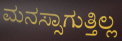
ಮನಸ್ಸಾಗುತ್ತಿಲ್ಲ